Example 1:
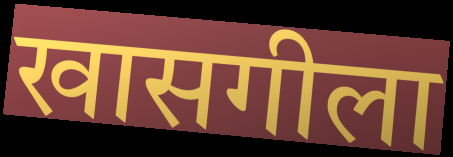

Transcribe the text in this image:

खासगीला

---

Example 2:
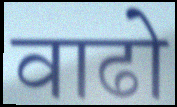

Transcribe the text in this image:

वाढो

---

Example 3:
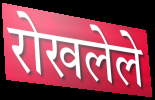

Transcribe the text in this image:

रोखलेले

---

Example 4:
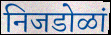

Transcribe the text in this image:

निजडोळां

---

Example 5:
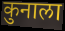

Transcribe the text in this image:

कुनाला